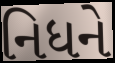
નિધને